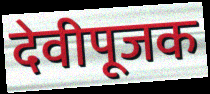
देवीपूजक